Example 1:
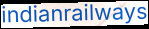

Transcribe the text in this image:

indianrailways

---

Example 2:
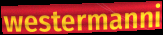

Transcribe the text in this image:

westermanni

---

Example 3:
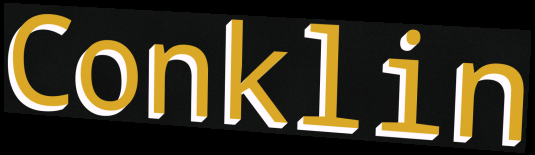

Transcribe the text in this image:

Conklin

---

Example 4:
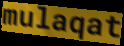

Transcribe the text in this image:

mulaqat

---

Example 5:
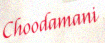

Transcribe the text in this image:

Choodamani